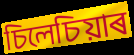
চিলেচিয়াৰ